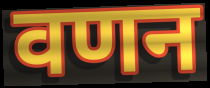
वणन